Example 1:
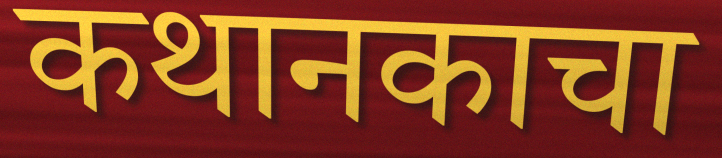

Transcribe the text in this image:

कथानकाचा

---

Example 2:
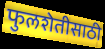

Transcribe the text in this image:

फुलशेतीसाठी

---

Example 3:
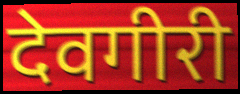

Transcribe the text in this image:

देवगीरी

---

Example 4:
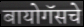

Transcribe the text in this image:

बायोगॅसचे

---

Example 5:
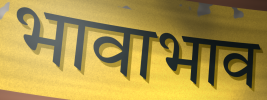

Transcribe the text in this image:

भावाभाव